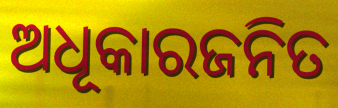
ଅଧୂକାରଜନିତ